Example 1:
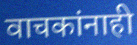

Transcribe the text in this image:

वाचकांनाही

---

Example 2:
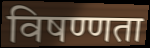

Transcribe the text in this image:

विषण्णता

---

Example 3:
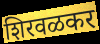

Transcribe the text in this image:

शिरवळकर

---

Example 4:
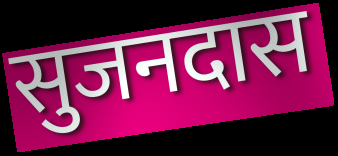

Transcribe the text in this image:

सुजनदास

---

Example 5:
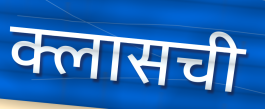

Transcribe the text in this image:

क्लासची